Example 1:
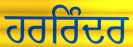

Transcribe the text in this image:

ਹਰਰਿੰਦਰ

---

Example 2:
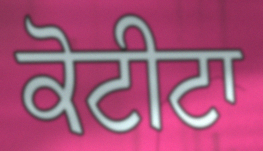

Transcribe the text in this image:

ਕੋਟੀਟਾ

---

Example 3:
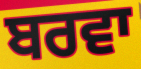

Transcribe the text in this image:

ਬਰਵਾ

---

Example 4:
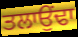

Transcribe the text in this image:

ਤਲਾਉਂਢਾ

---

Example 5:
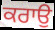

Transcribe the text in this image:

ਕਰਾਉ